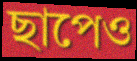
ছাপেও